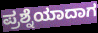
ಪ್ರಶ್ನೆಯಾದಾಗ